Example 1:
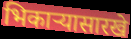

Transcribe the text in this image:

भिकार्‍यासारखे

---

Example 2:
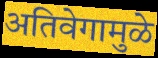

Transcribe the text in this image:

अतिवेगामुळे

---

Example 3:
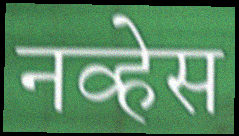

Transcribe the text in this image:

नव्हेस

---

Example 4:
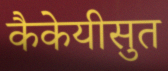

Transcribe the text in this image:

कैकेयीसुत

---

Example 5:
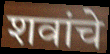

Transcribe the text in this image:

शवांचे